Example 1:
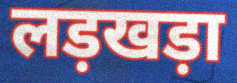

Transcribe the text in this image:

लड़खड़ा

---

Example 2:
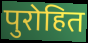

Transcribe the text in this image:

पुरोहित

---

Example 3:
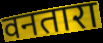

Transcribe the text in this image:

वनतारा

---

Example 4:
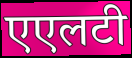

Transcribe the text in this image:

एएलटी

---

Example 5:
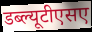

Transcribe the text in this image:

डब्ल्यूटीएसए